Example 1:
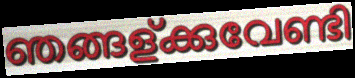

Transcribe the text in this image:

ഞങ്ങള്ക്കുവേണ്ടി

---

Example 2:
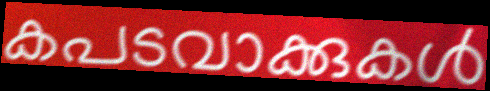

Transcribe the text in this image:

കപടവാക്കുകൾ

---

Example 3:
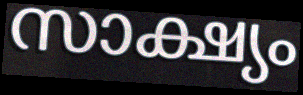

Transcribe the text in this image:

സാക്ഷ്യം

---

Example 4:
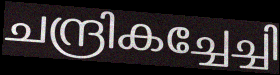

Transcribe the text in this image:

ചന്ദ്രികച്ചേച്ചി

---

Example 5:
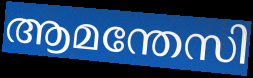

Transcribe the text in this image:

ആമന്തേസി